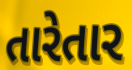
તારેતાર